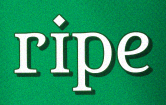
ripe